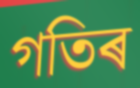
গতিৰ